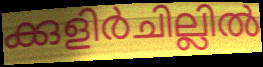
ക്കുളിർചില്ലിൽ